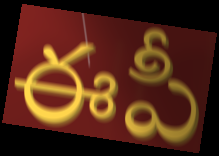
ఈపీ